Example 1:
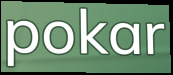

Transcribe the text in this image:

pokar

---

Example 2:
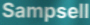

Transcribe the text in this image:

Sampsell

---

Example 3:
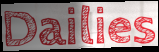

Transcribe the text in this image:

Dailies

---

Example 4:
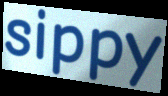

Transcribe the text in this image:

sippy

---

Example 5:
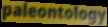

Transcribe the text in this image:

paleontology